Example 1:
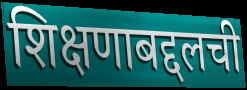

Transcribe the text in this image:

शिक्षणाबद्दलची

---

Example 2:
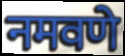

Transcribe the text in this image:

नमवणे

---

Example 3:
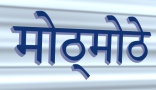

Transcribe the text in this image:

मोठ्मोठे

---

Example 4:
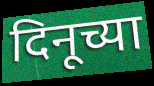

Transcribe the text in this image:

दिनूच्या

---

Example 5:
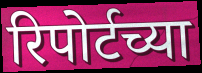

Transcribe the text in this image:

रिपोर्टच्या